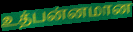
உத்பன்னமான